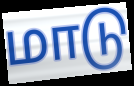
மாடு